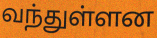
வந்துள்ளன